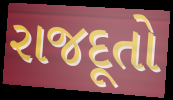
રાજદૂતો